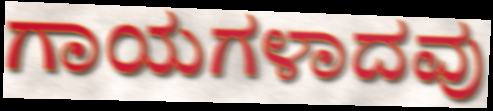
ಗಾಯಗಳಾದವು